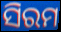
ସିରମ